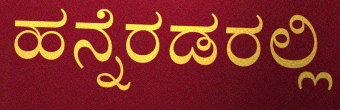
ಹನ್ನೆರಡರಲ್ಲಿ